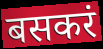
बसकरं